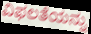
ವಿಫಲತೆಯನ್ನು